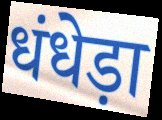
धंधेड़ा